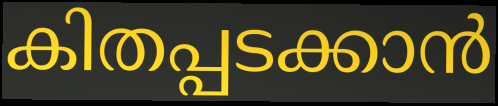
കിതപ്പടക്കാൻ